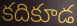
కదికూడ